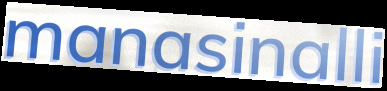
manasinalli